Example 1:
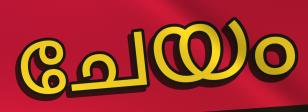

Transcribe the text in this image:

ചേയം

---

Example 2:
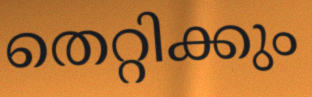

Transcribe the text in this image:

തെറ്റിക്കും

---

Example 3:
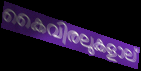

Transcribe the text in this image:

കൈവിരലുകളാല്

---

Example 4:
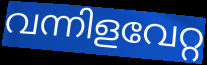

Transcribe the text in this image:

വന്നിളവേറ്റ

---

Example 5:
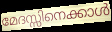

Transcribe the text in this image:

മേദസ്സിനെക്കാൾ